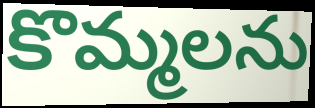
కొమ్మలను